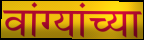
वांग्यांच्या